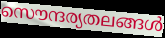
സൌന്ദര്യതലങ്ങൾ